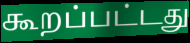
கூறப்பட்டது